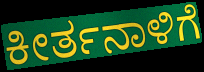
ಕೀರ್ತನಾಳಿಗೆ